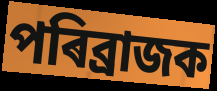
পৰিব্ৰাজক